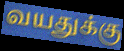
வயதுக்கு